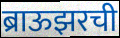
ब्राऊझरची